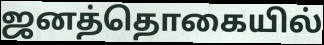
ஜனத்தொகையில்